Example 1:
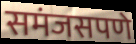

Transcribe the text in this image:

समंजसपणे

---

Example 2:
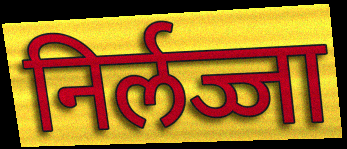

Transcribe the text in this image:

निर्लज्जा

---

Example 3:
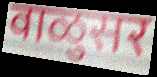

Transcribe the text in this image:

वाळुसर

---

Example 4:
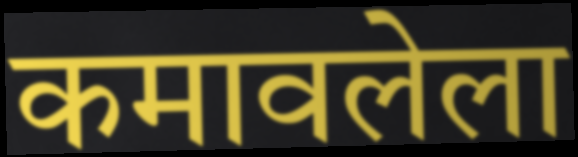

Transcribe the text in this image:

कमावलेला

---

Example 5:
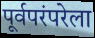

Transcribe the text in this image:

पूर्वपरंपरेला